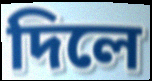
দিলে